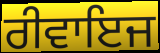
ਰੀਵਾਇਜ